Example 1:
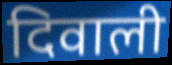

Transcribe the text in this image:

दिवाली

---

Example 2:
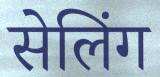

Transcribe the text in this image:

सेलिंग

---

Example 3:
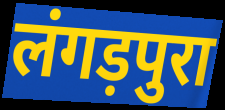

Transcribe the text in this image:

लंगड़पुरा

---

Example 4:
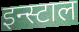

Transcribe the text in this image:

इन्स्टाल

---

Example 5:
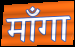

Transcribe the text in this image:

माँगा